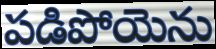
పడిపోయెను